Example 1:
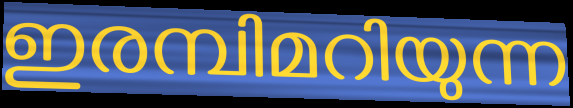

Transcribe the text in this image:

ഇരമ്പിമറിയുന്ന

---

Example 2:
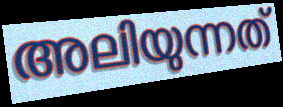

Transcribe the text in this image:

അലിയുന്നത്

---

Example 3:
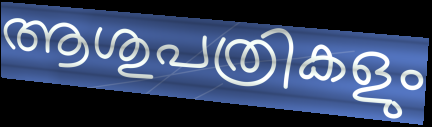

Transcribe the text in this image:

ആശുപത്രികളും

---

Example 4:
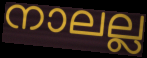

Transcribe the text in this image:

നാലല്ല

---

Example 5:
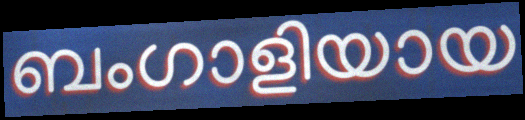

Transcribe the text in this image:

ബംഗാളിയായ